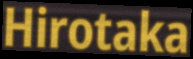
Hirotaka